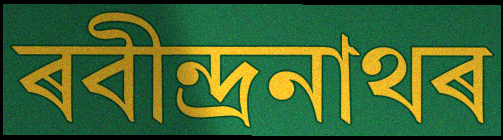
ৰবীন্দ্ৰনাথৰ